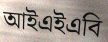
আইএইএবি